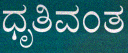
ಧೃತಿವಂತ